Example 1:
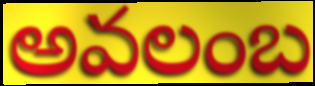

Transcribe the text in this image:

అవలంబ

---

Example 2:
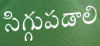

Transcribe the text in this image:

సిగ్గుపడాలి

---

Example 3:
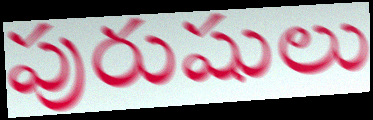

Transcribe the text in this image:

పురుషులు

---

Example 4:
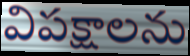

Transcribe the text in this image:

విపక్షాలను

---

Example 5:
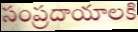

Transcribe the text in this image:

సంప్రదాయాలకి